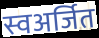
स्वअर्जित